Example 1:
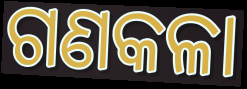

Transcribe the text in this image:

ଗଣକଳା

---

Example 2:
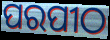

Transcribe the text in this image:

ପରପୀଠ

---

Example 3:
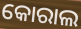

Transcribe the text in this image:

କୋରାଲ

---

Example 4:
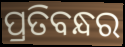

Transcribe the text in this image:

ପ୍ରତିବନ୍ଧର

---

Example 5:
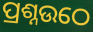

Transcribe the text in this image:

ପ୍ରଶ୍ନଉଠେ